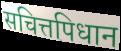
सचित्तपिधान